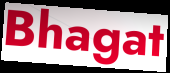
Bhagat